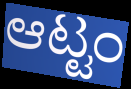
ಆಟ್ಟಂ